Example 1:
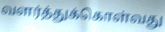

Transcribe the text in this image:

வளர்த்துக்கொள்வது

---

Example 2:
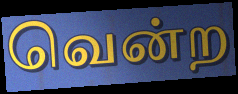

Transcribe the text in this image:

வென்ற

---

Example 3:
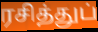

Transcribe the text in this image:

ரசித்துப்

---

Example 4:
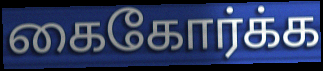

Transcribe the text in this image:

கைகோர்க்க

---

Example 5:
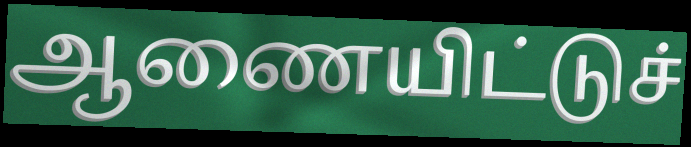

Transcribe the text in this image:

ஆணையிட்டுச்